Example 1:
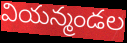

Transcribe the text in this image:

వియన్మండల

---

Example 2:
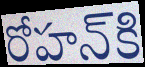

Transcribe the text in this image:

రోహన్‌కి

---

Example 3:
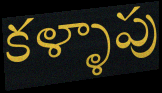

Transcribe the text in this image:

కళ్ళాపు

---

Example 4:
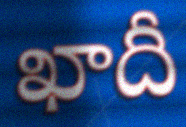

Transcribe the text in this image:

ఖాదీ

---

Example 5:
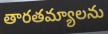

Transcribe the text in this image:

తారతమ్యాలను